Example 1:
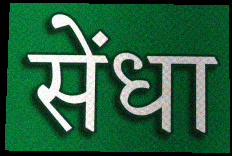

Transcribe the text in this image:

सेंधा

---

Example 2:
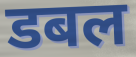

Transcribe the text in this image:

डबल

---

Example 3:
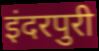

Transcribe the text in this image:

इंदरपुरी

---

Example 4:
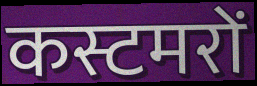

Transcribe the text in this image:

कस्टमरों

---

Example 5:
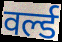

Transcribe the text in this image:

वर्ल्‍ड